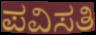
ಪವಿಸತಿ